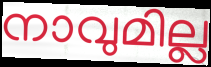
നാവുമില്ല